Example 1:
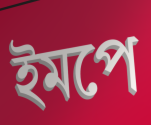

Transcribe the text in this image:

ইমপে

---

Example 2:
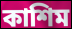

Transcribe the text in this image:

কাশিম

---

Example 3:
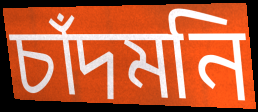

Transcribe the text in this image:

চাঁদমনি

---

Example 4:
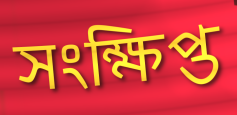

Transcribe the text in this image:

সংক্ষিপ্ত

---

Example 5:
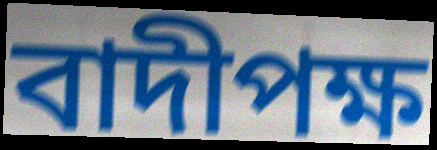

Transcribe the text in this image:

বাদীপক্ষ